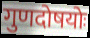
गुणदोषयोः